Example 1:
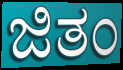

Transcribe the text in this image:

ಜಿತಂ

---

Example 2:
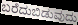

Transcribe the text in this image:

ಬರೆದುಬಿಡುವುದು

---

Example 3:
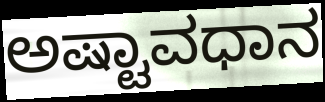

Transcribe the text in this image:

ಅಷ್ಟಾವಧಾನ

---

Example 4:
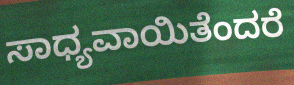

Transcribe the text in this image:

ಸಾಧ್ಯವಾಯಿತೆಂದರೆ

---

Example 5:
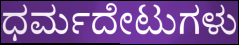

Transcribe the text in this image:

ಧರ್ಮದೇಟುಗಳು